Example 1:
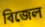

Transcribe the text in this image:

ৰিজেল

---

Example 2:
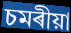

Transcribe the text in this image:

চমৰীয়া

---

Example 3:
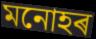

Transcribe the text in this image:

মনোহৰ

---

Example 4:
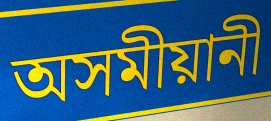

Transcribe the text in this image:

অসমীয়ানী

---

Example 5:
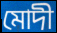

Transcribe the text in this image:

মোদী